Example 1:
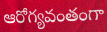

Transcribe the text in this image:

ఆరోగ్యవంతంగా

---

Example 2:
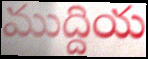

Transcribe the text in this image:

ముద్దియ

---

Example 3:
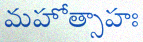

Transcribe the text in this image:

మహోత్సాహః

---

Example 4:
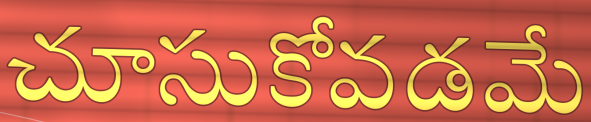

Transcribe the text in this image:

చూసుకోవడమే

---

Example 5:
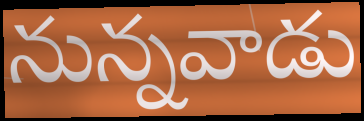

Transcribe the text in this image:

నున్నవాడు